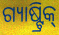
ଗ୍ୟାଷ୍ଟ୍ରିକ୍